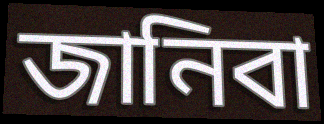
জানিবা